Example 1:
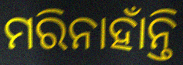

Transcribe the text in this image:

ମରିନାହାଁନ୍ତି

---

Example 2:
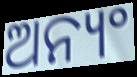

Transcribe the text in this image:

ଅନ୍ୟଂ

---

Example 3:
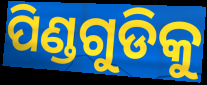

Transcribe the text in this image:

ପିଣ୍ଡଗୁଡିକୁ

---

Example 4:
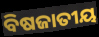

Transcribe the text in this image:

ବିଷଜାତୀୟ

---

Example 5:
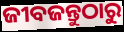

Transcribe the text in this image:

ଜୀବଜନ୍ତୁଠାରୁ